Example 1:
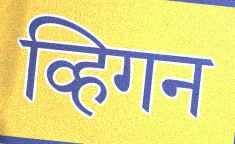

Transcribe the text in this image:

व्हिगन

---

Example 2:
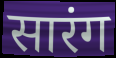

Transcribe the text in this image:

सारंग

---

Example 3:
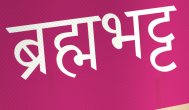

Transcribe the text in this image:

ब्रह्मभट्ट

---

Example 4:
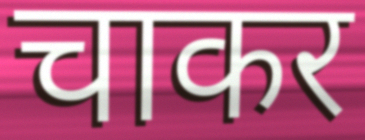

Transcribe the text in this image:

चाकर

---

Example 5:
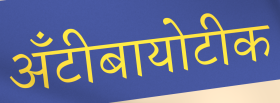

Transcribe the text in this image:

अँटीबायोटीक